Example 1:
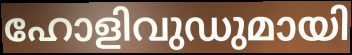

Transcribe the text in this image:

ഹോളിവുഡുമായി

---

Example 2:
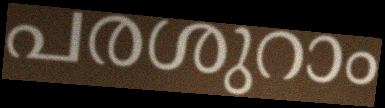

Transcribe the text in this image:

പരശുറാം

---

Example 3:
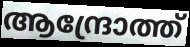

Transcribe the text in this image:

ആന്ദ്രോത്ത്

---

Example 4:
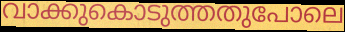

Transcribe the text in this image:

വാക്കുകൊടുത്തതുപോലെ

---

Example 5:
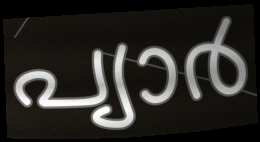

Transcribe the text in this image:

പ്യാർ